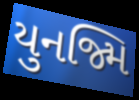
યુનજ્મિ